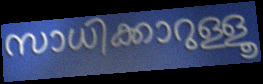
സാധിക്കാറുള്ളൂ